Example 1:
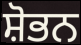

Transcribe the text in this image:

ਸ਼ੋਭਨ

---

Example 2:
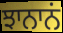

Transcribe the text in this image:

ਝਾਨਾਨਂ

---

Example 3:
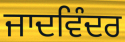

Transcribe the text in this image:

ਜਾਦਵਿੰਦਰ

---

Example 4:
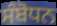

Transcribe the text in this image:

ਸੰਬੋਧਨ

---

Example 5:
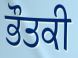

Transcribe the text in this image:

ਭੌਤਕੀ